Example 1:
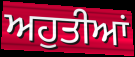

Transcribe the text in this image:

ਅਹੁਤੀਆਂ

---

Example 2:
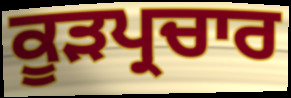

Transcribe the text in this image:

ਕੂੜਪ੍ਰਚਾਰ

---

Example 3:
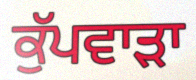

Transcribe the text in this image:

ਕੁੱਪਵਾੜਾ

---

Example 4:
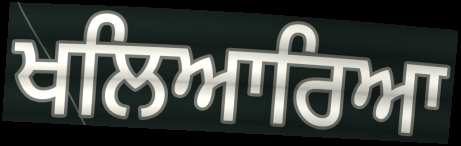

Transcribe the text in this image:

ਖਲਿਆਰਿਆ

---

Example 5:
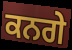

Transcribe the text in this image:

ਕਨਗੇ